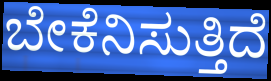
ಬೇಕೆನಿಸುತ್ತಿದೆ